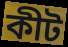
কীট